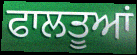
ਫਾਲਤੂਆਂ